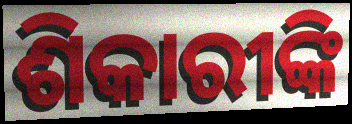
ଶିକାରୀଙ୍କି